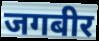
जगबीर